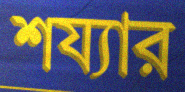
শয্যার